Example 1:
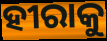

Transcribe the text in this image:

ହୀରାକୁ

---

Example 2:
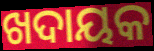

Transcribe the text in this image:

ଖଦାୟକ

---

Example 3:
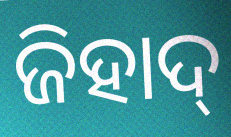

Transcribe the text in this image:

ଜିହାଦ୍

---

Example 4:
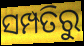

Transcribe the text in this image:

ସମ୍ପତିରୁ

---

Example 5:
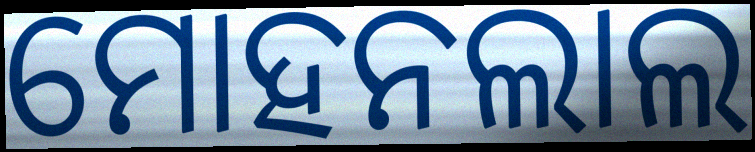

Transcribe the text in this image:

ମୋହନଲାଲ